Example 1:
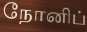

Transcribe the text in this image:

நோனிப்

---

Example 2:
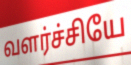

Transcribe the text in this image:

வளர்ச்சியே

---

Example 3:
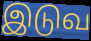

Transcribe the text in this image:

இடுவ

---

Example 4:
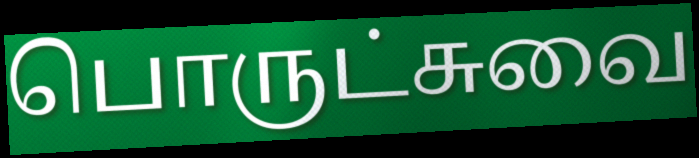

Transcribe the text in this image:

பொருட்சுவை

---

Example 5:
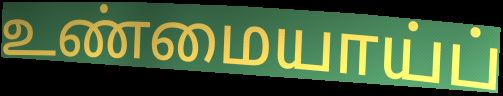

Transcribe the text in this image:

உண்மையாய்ப்